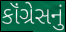
કૉંગ્રેસનું